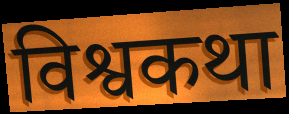
विश्वकथा